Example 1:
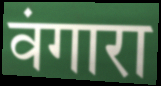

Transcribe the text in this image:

वंगारा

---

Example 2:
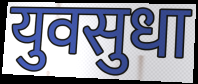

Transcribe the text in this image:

युवसुधा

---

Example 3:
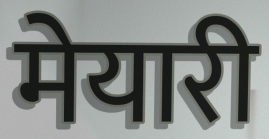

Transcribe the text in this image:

मेयारी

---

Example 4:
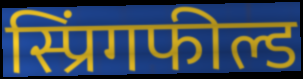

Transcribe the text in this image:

स्प्रिंगफील्ड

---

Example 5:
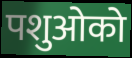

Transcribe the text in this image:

पशुओको